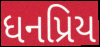
ધનપ્રિય